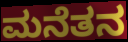
ಮನೆತನ